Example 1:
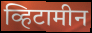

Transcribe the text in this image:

व्हिटामीन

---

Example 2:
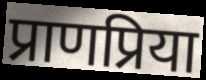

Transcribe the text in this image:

प्राणप्रिया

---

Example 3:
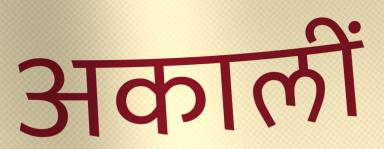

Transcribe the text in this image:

अकालीं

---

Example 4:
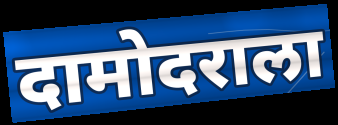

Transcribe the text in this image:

दामोदराला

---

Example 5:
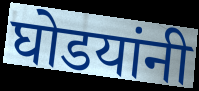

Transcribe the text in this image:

घोडयांनी